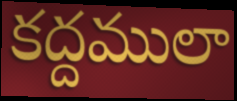
కద్దములా